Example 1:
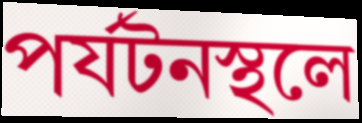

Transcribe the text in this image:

পর্যটনস্থলে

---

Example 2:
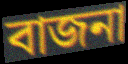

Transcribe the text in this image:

বাজনা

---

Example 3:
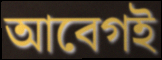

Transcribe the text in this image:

আবেগই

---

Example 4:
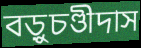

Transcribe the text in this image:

বড়ুচণ্ডীদাস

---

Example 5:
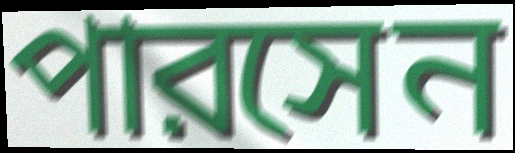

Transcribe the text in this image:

পারসেন